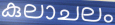
കുലാചലം